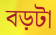
বড়টা